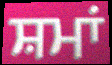
ਸ਼ਮਾਂ